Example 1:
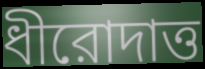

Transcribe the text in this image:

ধীরোদাত্ত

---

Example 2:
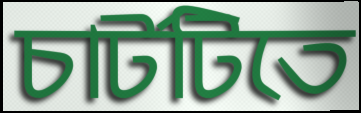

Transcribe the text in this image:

চার্টটিতে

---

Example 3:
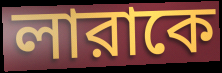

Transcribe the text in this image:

লারাকে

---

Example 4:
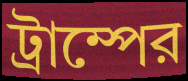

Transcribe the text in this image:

ট্রাম্পের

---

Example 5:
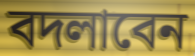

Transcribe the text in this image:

বদলাবেন